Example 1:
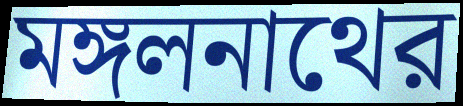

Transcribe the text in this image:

মঙ্গলনাথের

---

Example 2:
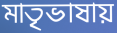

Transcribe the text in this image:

মাতৃভাষায়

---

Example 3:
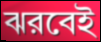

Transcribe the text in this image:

ঝরবেই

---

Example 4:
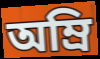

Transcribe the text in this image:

অম্রি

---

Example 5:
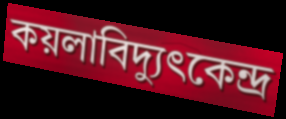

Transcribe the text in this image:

কয়লাবিদ্যুৎকেন্দ্র